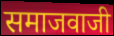
समाजवाजी